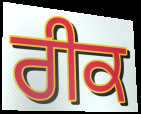
ਰੀਕ